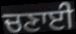
ਚਣਾਈ